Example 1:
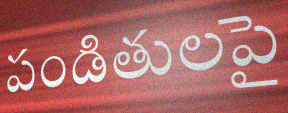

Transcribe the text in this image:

పండితులపై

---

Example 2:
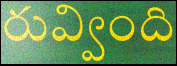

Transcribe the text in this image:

రువ్వింది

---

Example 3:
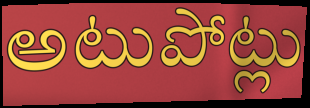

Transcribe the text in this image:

అటుపోట్లు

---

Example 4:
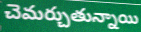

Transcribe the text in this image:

చెమర్చుతున్నాయి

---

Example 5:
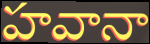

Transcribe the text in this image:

హవానా